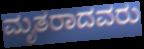
ಮೃತರಾದವರು